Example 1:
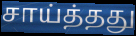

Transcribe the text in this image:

சாய்த்தது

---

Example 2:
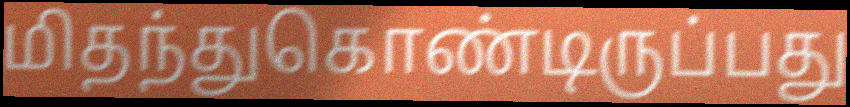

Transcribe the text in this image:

மிதந்துகொண்டிருப்பது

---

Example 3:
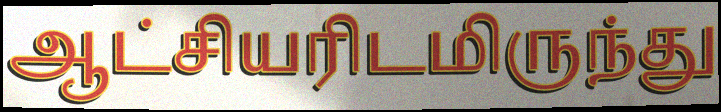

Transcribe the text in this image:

ஆட்சியரிடமிருந்து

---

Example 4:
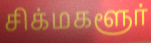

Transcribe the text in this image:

சிக்மகளூர்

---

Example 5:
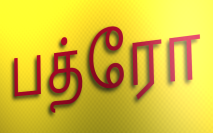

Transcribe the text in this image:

பத்ரோ